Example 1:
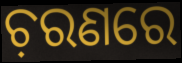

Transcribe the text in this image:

ଚ଼ରଣରେ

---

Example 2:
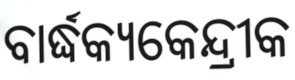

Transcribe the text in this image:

ବାର୍ଦ୍ଧକ୍ୟକେନ୍ଦ୍ରୀକ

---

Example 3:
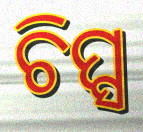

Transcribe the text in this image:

ଚିପ୍ସ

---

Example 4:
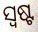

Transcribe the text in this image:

ସ୍ୱଷ୍ଟ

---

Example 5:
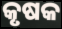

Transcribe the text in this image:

କୃଷକ